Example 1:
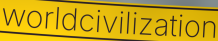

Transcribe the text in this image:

worldcivilization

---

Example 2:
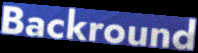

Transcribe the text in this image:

Backround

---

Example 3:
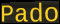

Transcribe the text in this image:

Pado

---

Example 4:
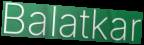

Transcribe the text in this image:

Balatkar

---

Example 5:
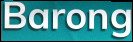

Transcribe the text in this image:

Barong